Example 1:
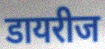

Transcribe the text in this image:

डायरीज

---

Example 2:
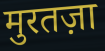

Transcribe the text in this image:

मुरतज़ा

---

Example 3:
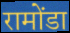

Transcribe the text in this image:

रामोंडा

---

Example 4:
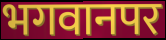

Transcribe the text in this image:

भगवानपर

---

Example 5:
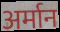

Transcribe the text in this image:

अर्मान